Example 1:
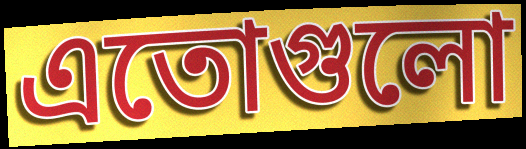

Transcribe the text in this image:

এতোগুলো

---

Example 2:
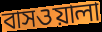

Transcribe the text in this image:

বাসওয়ালা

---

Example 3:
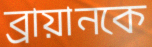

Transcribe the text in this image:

ব্রায়ানকে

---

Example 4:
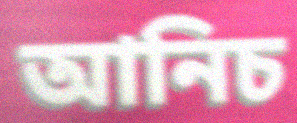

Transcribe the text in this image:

আনিচ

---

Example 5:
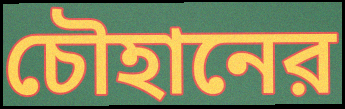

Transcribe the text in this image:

চৌহানের